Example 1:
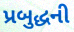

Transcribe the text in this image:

પ્રબુદ્ધની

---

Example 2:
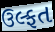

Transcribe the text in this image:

ઉલ્ફત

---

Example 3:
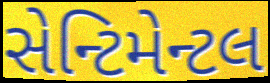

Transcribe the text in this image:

સેન્ટિમેન્ટલ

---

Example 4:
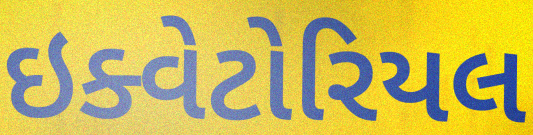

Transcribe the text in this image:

ઇક્વેટોરિયલ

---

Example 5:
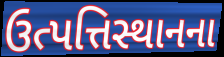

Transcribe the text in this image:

ઉત્પત્તિસ્થાનના